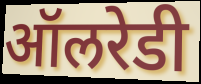
ऑलरेडी